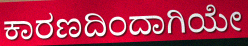
ಕಾರಣದಿಂದಾಗಿಯೇ